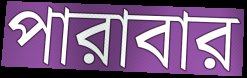
পারাবার